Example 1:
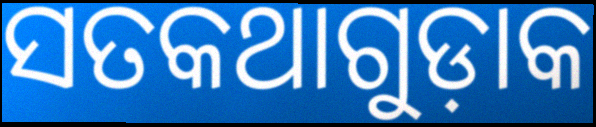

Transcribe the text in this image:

ସତକଥାଗୁଡ଼ାକ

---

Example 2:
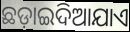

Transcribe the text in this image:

ଛଡ଼ାଇଦିଆଯାଏ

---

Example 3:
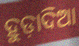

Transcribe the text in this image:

ହୁଡ଼ାଦିଆ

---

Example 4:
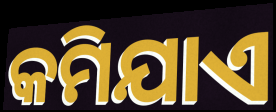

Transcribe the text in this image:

କମିଯାଏ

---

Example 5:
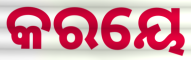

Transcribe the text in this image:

କରୟେ